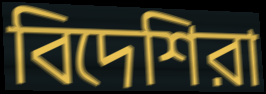
বিদেশিরা